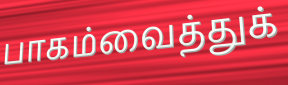
பாகம்வைத்துக்